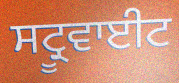
ਸਟ੍ਰੂਵਾਈਟ